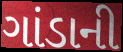
ગાંડાની